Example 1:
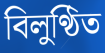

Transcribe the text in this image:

বিলুণ্ঠিত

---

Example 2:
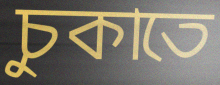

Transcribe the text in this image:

চুকাতে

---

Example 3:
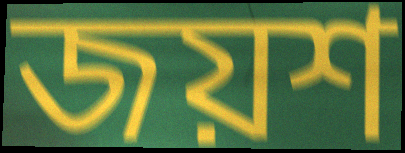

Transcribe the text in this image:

জয়শ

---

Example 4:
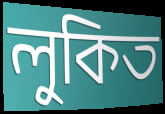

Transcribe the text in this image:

লুকিত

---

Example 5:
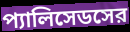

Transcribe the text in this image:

প্যালিসেডসের